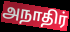
அநாதிர்